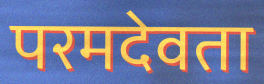
परमदेवता